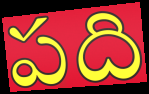
పది